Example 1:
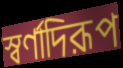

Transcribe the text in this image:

স্বর্ণাদিরূপ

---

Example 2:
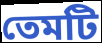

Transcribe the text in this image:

তেমটি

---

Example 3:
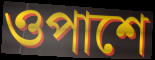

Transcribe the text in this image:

ওপাশে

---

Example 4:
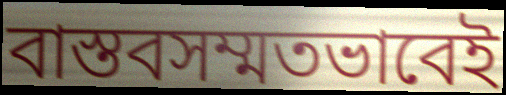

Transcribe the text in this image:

বাস্তবসম্মতভাবেই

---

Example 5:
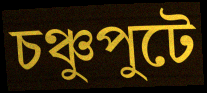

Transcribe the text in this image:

চঞ্চুপুটে